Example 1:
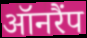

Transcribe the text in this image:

ऑनरैंप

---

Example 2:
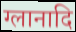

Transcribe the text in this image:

ग्लानादि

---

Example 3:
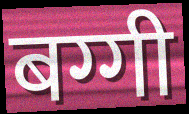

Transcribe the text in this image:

बग्गी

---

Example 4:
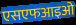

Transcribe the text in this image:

एसएफआइओ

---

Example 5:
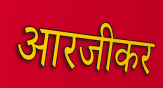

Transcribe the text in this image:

आरजीकर